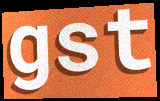
gst